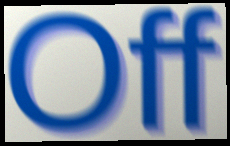
Off